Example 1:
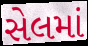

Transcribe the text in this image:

સેલમાં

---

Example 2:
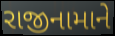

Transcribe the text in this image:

રાજીનામાને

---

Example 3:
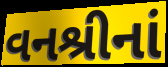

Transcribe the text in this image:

વનશ્રીનાં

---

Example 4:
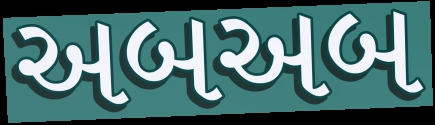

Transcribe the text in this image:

અબઅબ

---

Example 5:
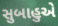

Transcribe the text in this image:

સુબાહુએ